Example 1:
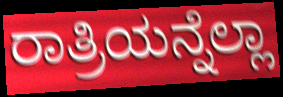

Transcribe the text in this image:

ರಾತ್ರಿಯನ್ನೆಲ್ಲಾ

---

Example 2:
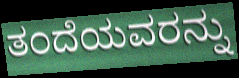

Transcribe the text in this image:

ತಂದೆಯವರನ್ನು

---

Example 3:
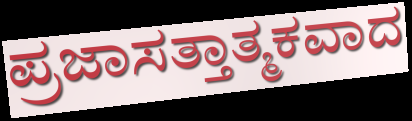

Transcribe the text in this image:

ಪ್ರಜಾಸತ್ತಾತ್ಮಕವಾದ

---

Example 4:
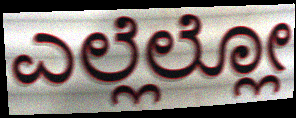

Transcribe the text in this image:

ಎಲ್ಲೆಲ್ಲೋ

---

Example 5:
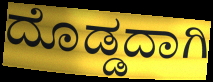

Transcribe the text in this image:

ದೊಡ್ಡದಾಗಿ